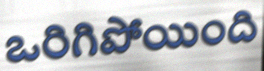
ఒరిగిపోయింది